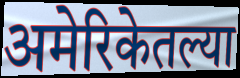
अमेरिकेतल्या